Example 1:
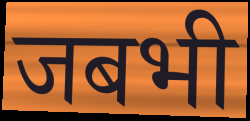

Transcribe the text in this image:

जबभी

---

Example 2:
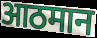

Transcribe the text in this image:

आठमान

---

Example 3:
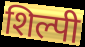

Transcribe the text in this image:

शिल्‍पी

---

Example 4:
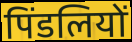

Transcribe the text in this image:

पिंडलियों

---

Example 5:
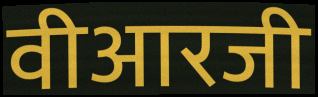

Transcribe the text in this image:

वीआरजी